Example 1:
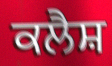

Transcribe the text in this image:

ਕਲੈਸ਼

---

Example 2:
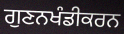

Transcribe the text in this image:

ਗੁਣਨਖੰਡੀਕਰਨ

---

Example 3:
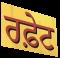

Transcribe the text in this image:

ਰਫ਼ੇਟ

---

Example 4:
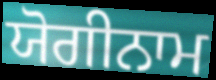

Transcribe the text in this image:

ਯੋਗੀਨਾਮ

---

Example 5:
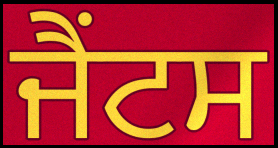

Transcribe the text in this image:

ਜੈਂਟਸ